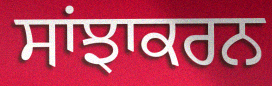
ਸਾਂਝਾਕਰਨ